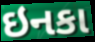
ઇનકા